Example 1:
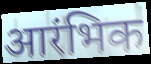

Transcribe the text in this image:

आरंभिक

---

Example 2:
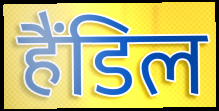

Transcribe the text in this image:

हैंडिल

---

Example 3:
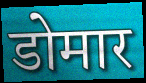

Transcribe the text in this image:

डोमार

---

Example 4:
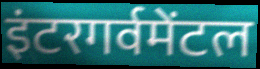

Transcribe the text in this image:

इंटरगर्वमेंटल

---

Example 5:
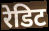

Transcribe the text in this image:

रेडिट